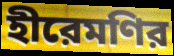
হীরেমণির